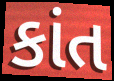
કાંત